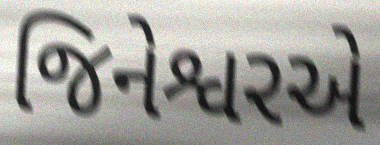
જિનેશ્વરએ